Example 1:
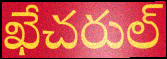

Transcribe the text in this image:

ఖేచరుల్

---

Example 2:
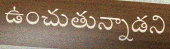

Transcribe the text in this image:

ఉంచుతున్నాడని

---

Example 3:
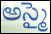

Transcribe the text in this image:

అస్మై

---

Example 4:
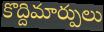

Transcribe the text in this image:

కొద్దిమార్పులు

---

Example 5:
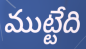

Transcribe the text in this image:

ముట్టేది